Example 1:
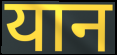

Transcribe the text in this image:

यान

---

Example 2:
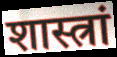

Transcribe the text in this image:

शास्त्रां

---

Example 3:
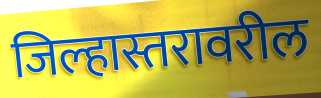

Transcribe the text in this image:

जिल्हास्तरावरील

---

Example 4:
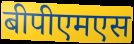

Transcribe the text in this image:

बीपीएमएस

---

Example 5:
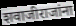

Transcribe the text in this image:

शवाजीराजांना